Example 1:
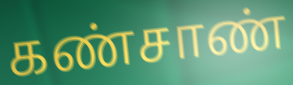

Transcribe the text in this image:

கண்சாண்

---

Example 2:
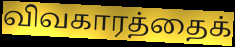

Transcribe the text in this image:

விவகாரத்தைக்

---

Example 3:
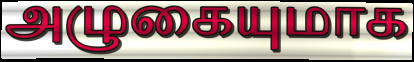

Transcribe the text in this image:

அழுகையுமாக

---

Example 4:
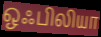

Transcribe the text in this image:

ஒஃபிலியா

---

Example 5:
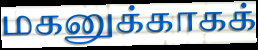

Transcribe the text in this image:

மகனுக்காகக்